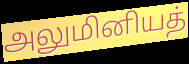
அலுமினியத்